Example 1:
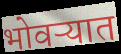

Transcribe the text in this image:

भोवऱ्यात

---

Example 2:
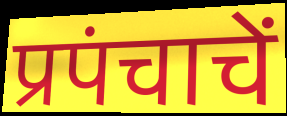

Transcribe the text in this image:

प्रपंचाचें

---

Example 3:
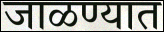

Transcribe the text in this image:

जाळण्यात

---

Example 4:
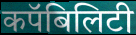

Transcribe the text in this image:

कपॅबिलिटी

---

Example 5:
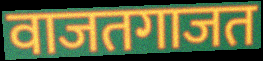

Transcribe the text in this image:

वाजतगाजत